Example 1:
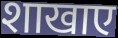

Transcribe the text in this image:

शाखाए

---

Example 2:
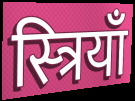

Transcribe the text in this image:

स्‍त्रियाँ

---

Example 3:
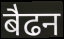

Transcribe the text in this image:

बैढन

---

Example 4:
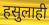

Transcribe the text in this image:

हसुलाही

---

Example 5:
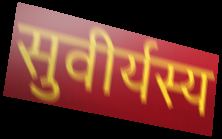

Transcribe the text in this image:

सुवीर्यस्य